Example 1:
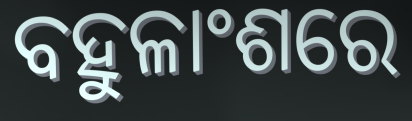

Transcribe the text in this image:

ବହୁଳାଂଶରେ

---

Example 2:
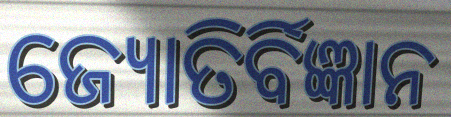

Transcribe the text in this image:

ଜ୍ୟୋତିର୍ବିଜ୍ଞାନ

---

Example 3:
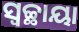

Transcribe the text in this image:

ସ୍ୱଚ୍ଛାୟା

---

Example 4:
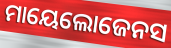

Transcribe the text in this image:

ମାୟେଲୋଜେନସ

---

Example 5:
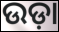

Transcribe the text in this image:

ଉଡ଼ା